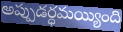
అప్పుడర్ధమయ్యింది